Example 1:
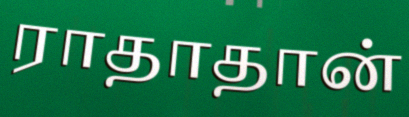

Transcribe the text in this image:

ராதாதான்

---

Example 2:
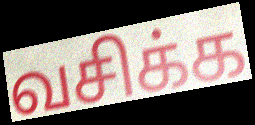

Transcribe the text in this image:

வசிக்க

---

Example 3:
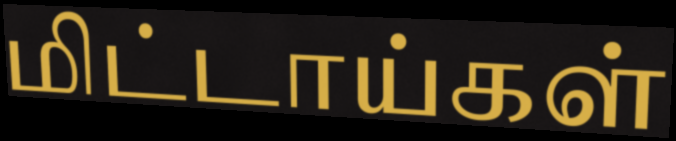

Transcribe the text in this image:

மிட்டாய்கள்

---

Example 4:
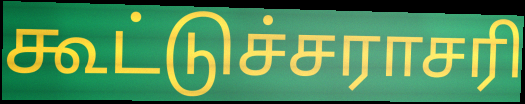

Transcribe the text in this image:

கூட்டுச்சராசரி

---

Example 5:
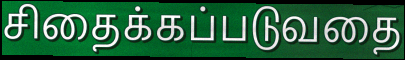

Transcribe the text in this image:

சிதைக்கப்படுவதை